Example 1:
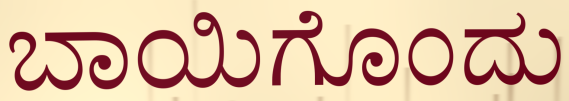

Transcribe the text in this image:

ಬಾಯಿಗೊಂದು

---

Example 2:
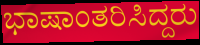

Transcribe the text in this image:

ಭಾಷಾಂತರಿಸಿದ್ದರು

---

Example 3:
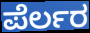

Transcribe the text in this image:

ಪೆರ್ಲರ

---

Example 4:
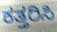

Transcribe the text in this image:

ಕತ್ತರಿಸಿ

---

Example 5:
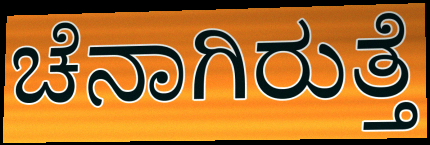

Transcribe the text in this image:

ಚೆನಾಗಿರುತ್ತೆ